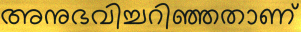
അനുഭവിച്ചറിഞ്ഞതാണ്